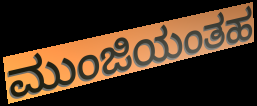
ಮುಂಜಿಯಂತಹ